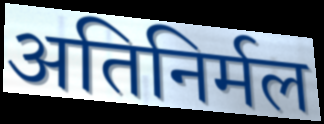
अतिनिर्मल